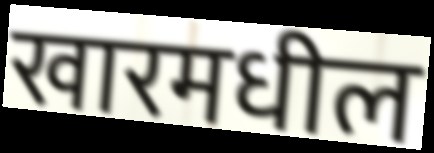
खारमधील